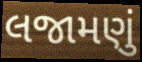
લજામણું